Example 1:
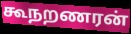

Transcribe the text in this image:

கூநறணரன்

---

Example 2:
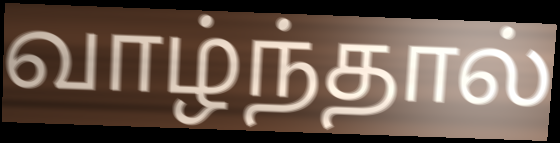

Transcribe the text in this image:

வாழ்ந்தால்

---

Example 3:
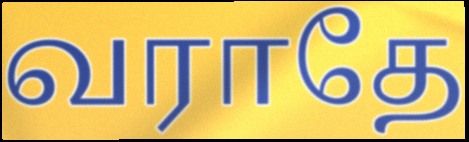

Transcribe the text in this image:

வராதே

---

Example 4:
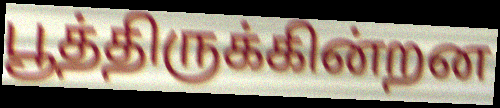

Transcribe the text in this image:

பூத்திருக்கின்றன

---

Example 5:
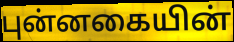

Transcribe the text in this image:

புன்னகையின்